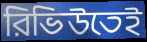
রিভিউতেই